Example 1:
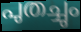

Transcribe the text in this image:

പുതച്ചും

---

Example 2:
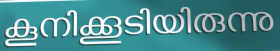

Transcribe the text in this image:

കൂനിക്കൂടിയിരുന്നു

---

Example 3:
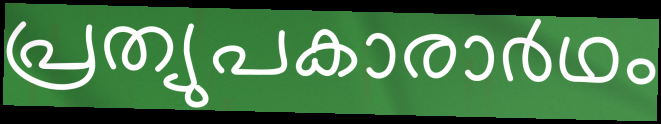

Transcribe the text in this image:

പ്രത്യുപകാരാർഥം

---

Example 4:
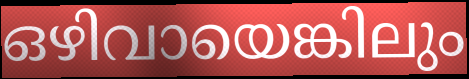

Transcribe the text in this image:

ഒഴിവായെങ്കിലും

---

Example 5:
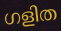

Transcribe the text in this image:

ഗളിത